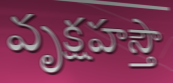
వృక్షహస్తౌ